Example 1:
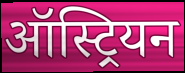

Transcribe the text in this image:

ऑस्ट्रियन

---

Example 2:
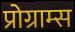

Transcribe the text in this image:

प्रोग्राम्‍स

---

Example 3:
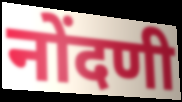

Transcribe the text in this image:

नोंदणी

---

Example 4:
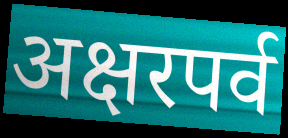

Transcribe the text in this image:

अक्षरपर्व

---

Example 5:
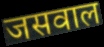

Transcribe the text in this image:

जसवाल